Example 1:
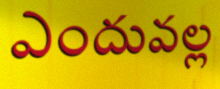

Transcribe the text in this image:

ఎందువల్ల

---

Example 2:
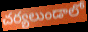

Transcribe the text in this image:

చర్యలుండాలో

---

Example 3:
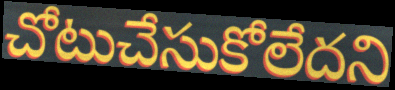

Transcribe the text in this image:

చోటుచేసుకోలేదని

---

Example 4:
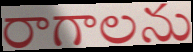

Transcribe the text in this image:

రాగాలను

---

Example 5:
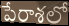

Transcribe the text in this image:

పేరాశలో